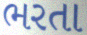
ભરતા